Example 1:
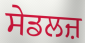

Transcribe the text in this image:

ਸੇਡਲਜ਼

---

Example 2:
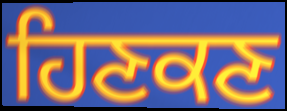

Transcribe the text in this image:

ਹਿਣਕਣ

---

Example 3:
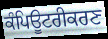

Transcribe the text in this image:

ਕੰਪਿਊਟਰੀਕਰਣ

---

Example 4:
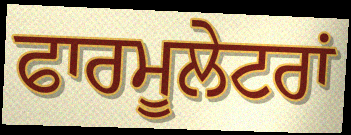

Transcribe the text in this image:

ਫਾਰਮੂਲੇਟਰਾਂ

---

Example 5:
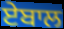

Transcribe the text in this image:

ਏਬਾਲ